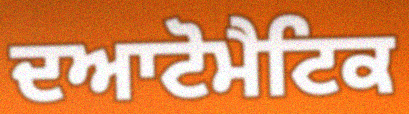
ਦਆਟੋਮੈਟਿਕ